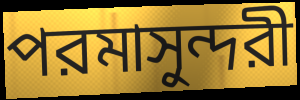
পরমাসুন্দরী